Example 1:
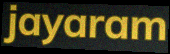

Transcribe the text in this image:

jayaram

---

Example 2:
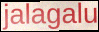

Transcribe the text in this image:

jalagalu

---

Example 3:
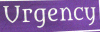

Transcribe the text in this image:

Urgency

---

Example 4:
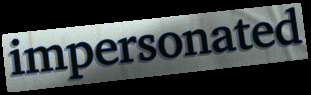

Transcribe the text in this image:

impersonated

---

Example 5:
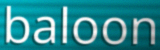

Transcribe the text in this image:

baloon